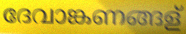
ദേവാങ്കണങ്ങള്